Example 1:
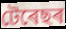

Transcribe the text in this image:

টেৰেছৰ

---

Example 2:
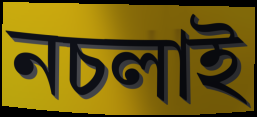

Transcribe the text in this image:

নচলাই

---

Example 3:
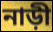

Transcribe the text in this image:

নাড়ী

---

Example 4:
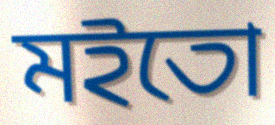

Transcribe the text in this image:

মইতো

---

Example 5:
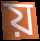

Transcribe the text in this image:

য়